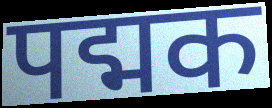
पद्मक